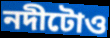
নদীটোও